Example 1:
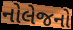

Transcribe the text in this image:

નોલેજનો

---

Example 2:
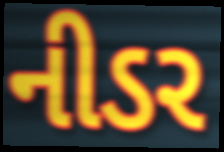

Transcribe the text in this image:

નીડર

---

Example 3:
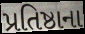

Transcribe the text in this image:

પ્રતિષ્ઠાના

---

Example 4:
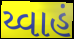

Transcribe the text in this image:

ય્વાહં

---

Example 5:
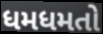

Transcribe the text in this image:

ધમધમતો